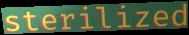
sterilized